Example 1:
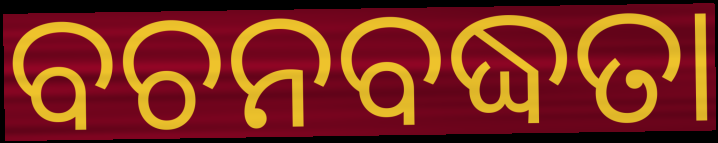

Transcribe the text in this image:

ବଚନବଦ୍ଧତା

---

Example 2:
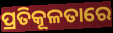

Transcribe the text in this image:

ପ୍ରତିକୂଳତାରେ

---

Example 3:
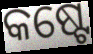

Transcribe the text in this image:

କଷ୍ଟେ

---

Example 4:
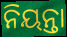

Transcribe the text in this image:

ନିୟନ୍ତା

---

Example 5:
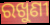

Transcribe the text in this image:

ରଖୁଣୀ